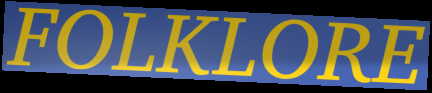
FOLKLORE